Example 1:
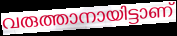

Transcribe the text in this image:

വരുത്താനായിട്ടാണ്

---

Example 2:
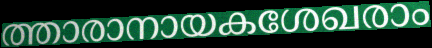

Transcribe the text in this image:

ത്താരാനായകശേഖരാം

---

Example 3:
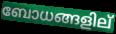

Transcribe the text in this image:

ബോധങ്ങളില്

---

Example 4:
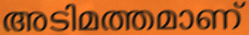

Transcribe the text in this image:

അടിമത്തമാണ്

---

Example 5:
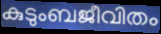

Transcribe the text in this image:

കുടുംബജീവിതം